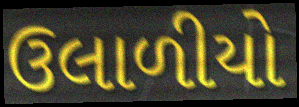
ઉલાળીયો